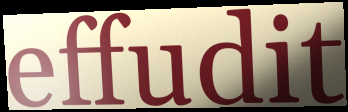
effudit